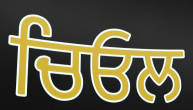
ਚਿਓਲ